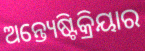
ଅନ୍ତ୍ୟେଷ୍ଟିକ୍ରିୟାର